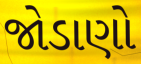
જોડાણો